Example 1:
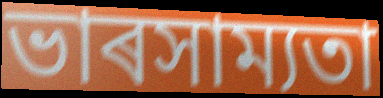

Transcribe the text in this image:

ভাৰসাম্যতা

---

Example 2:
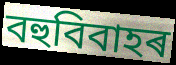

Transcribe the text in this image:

বহুবিবাহৰ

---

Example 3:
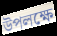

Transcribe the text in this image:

উপলক্ষে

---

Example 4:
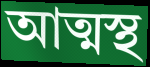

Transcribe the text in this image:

আত্মস্থ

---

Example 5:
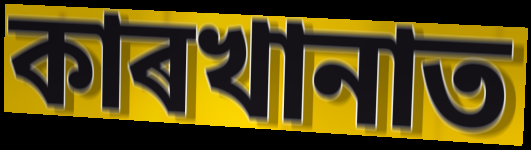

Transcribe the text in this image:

কাৰখানাত